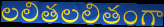
లలితలలితంగా